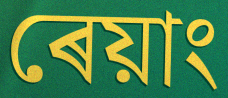
ৰেয়াং